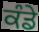
ਕੰਡੇ